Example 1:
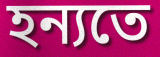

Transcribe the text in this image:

হন্যতে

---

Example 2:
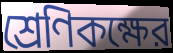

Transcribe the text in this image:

শ্রেণিকক্ষের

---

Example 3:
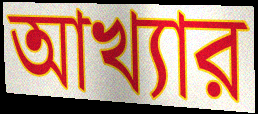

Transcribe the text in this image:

আখ্যার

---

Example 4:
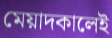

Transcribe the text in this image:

মেয়াদকালেই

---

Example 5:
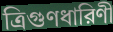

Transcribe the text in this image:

ত্রিগুণধারিণী